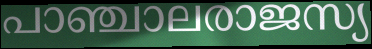
പാഞ്ചാലരാജസ്യ